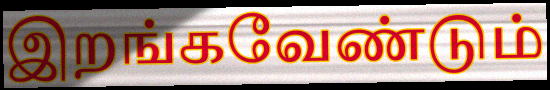
இறங்கவேண்டும்